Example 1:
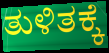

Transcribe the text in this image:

ತುಳಿತಕ್ಕೆ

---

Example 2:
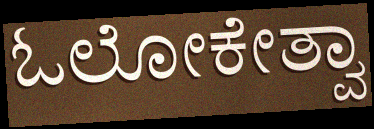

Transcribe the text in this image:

ಓಲೋಕೇತ್ವಾ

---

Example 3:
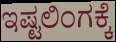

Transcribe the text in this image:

ಇಷ್ಟಲಿಂಗಕ್ಕೆ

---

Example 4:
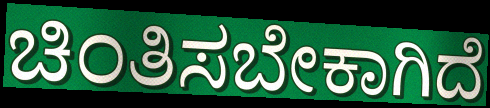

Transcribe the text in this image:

ಚಿಂತಿಸಬೇಕಾಗಿದೆ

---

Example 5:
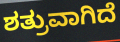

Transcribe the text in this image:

ಶತ್ರುವಾಗಿದೆ